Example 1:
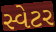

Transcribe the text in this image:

સ્વેટર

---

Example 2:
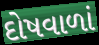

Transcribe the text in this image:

દોષવાળાં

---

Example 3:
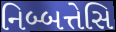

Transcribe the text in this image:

નિબ્બત્તેસિ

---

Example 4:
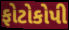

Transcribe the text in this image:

ફોટોકોપી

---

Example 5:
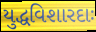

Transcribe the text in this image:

યુદ્ધવિશારદાઃ